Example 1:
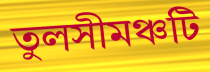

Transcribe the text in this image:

তুলসীমঞ্চটি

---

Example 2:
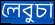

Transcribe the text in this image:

লেবুচা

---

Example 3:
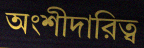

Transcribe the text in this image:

অংশীদারিত্ব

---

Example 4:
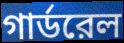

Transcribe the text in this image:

গার্ডরেল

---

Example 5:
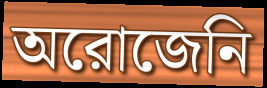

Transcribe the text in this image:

অরোজেনি